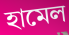
হামেল